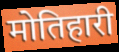
मोतिहारी